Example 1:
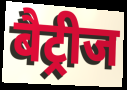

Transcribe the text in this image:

बैट्रीज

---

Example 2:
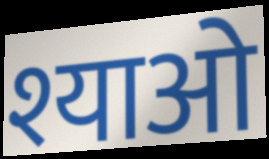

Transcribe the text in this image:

श्याओ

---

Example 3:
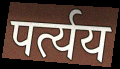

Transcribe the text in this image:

पर्त्यय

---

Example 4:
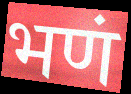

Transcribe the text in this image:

भणं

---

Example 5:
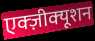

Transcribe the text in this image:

एक्ज़ीक्यूशन